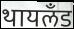
थायलँड